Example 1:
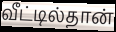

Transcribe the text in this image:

வீட்டில்தான்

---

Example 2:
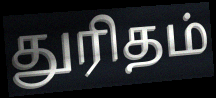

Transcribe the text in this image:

துரிதம்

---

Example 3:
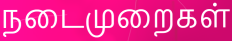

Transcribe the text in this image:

நடைமுறைகள்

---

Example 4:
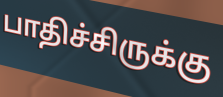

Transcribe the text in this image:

பாதிச்சிருக்கு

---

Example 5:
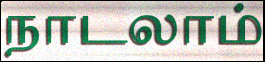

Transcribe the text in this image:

நாடலாம்